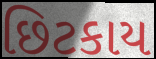
છિટકાય